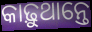
କାଢ଼ୁଥାନ୍ତେ